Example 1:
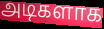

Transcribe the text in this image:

அடிகளாக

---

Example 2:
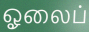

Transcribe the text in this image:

ஓலைப்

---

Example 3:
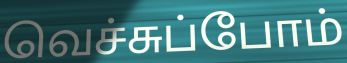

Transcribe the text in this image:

வெச்சுப்போம்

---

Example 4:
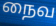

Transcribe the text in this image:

நைவ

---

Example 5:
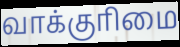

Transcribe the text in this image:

வாக்குரிமை